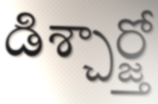
డిశ్చార్జ్తో